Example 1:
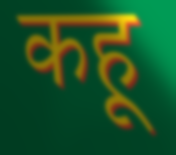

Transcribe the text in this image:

कहू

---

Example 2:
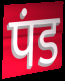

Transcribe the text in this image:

पंड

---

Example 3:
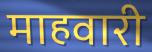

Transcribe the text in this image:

माहवारी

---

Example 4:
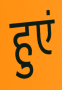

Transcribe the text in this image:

हुएं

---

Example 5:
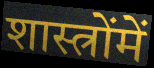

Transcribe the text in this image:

शास्त्रोंमें